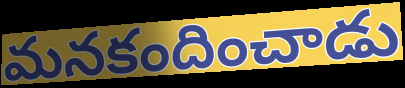
మనకందించాడు